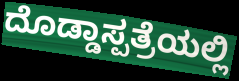
ದೊಡ್ಡಾಸ್ಪತ್ರೆಯಲ್ಲಿ